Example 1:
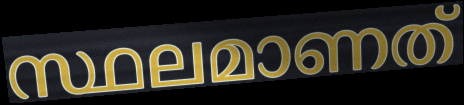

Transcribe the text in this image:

സ്ഥലമാണത്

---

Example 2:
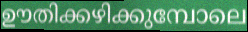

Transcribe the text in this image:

ഊതിക്കഴിക്കുമ്പോലെ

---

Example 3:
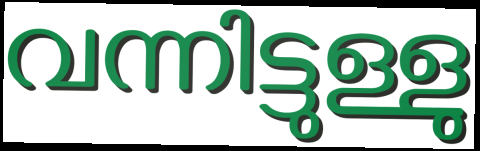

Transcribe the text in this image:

വന്നിട്ടുള്ളു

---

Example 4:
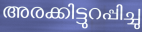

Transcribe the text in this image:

അരക്കിട്ടുറപ്പിച്ചു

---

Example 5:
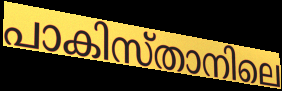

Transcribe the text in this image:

പാകിസ്താനിലെ